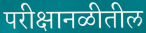
परीक्षानळीतील